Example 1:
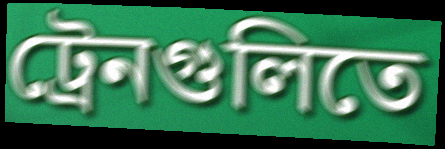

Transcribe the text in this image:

ট্রেনগুলিতে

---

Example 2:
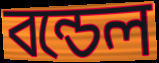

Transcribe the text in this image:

বন্ডেল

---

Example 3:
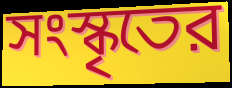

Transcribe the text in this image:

সংস্কৃতের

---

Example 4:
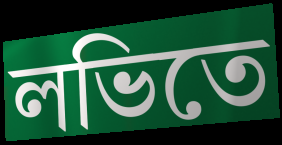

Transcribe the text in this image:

লভিতে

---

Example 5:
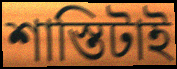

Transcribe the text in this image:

শাস্তিটাই